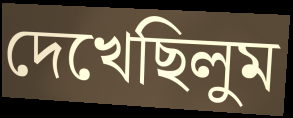
দেখেছিলুম